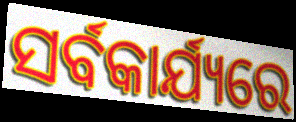
ସର୍ବକାର୍ଯ୍ୟରେ